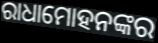
ରାଧାମୋହନଙ୍କର